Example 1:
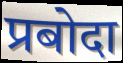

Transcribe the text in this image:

प्रबोदा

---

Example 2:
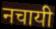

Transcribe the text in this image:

नचायी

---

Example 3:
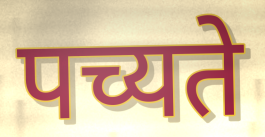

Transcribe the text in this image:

पच्यते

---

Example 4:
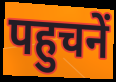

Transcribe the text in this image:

पहुचनें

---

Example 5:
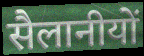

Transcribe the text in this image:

सैलानीयों